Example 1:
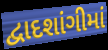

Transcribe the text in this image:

દ્વાદશાંગીમાં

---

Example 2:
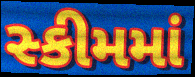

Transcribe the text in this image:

સ્કીમમાં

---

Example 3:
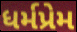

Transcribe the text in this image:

ધર્મપ્રેમ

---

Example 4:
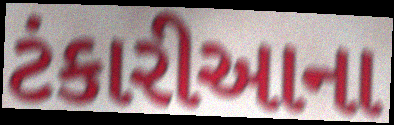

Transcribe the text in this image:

ટંકારીઆના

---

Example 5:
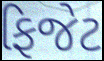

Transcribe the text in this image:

ફિજેટ